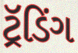
ટ્રૅડિંગ